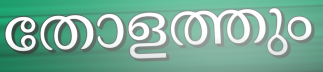
തോളത്തും